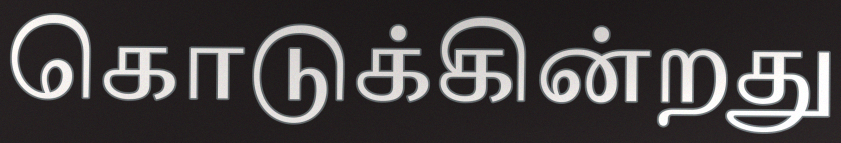
கொடுக்கின்றது